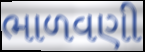
ભાળવણી